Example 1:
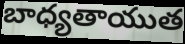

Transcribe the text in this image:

బాధ్యతాయుత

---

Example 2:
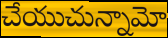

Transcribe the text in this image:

చేయుచున్నామో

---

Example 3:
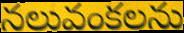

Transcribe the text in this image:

నలువంకలను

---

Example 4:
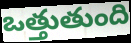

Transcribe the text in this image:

ఒత్తుతుంది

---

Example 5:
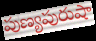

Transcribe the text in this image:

పుణ్యపురుషా